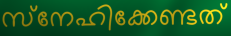
സ്‌നേഹിക്കേണ്ടത്